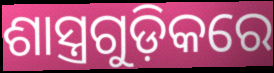
ଶାସ୍ତ୍ରଗୁଡ଼ିକରେ